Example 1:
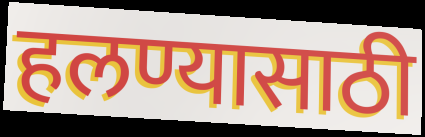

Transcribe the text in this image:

हलण्यासाठी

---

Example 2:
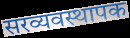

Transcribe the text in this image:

सरव्यवस्थापक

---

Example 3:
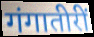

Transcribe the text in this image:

गंगातीरीं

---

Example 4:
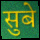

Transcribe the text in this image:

सुबे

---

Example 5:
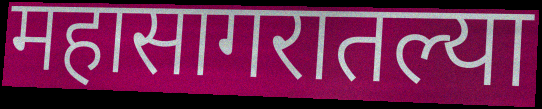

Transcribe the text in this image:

महासागरातल्या